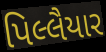
પિલ્લૈયાર